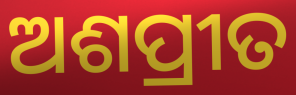
ଅଶପ୍ରୀତ